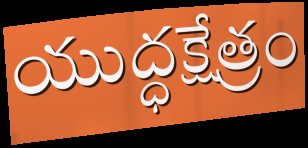
యుద్ధక్షేత్రం